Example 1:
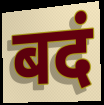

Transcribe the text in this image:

बदं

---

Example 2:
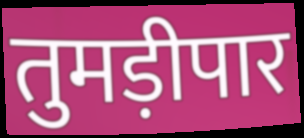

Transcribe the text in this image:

तुमड़ीपार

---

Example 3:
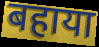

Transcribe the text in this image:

बहाया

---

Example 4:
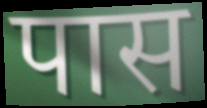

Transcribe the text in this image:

पास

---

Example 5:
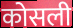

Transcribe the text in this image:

कोसली